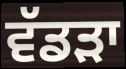
ਵੱਡਡ਼ਾ